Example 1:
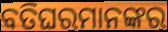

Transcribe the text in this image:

ବତିଘରମାନଙ୍କର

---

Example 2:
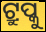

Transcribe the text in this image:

ଟ୍ରୁପ୍କୁ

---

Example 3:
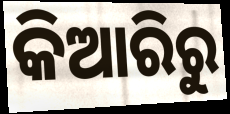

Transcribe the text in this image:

କିଆରିରୁ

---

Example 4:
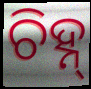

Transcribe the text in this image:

ଚିହ୍ନ୍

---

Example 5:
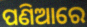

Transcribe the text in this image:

ପଣିଆରେ